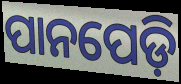
ପାନପେଡ଼ି